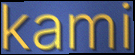
kami